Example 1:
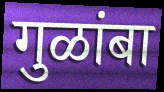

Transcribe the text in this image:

गुळांबा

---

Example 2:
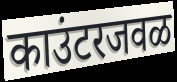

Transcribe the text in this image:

काउंटरजवळ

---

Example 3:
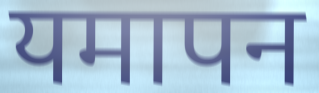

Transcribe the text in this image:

यमापन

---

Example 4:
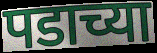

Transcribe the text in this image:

पडाच्या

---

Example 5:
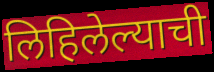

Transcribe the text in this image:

लिहिलेल्याची